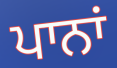
ਪਾਨਾਂ